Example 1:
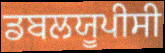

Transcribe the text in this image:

ਡਬਲਯੂਪੀਸੀ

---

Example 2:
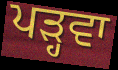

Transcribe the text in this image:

ਪੜ੍ਹਵਾ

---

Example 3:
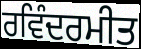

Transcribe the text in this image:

ਰਵਿੰਦਰਮੀਤ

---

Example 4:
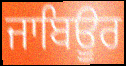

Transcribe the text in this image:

ਜਾਬਿਊਰ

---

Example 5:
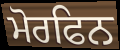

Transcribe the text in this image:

ਮੋਰਫਿਨ